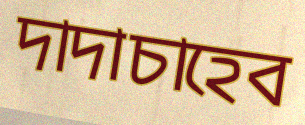
দাদাচাহেব